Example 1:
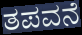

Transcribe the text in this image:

ತಪವನೆ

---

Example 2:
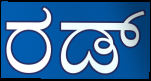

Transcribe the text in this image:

ರಡ್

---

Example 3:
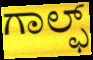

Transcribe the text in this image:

ಗಾಲ್ಫ್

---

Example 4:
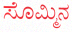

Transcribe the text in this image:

ಸೊಮ್ಮಿನ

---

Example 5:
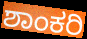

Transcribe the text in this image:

ಶಾಂಕರಿ